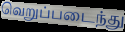
வெறுப்படைந்து